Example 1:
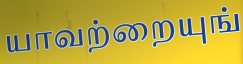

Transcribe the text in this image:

யாவற்றையுங்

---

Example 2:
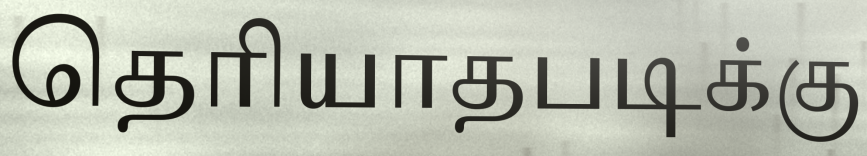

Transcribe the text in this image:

தெரியாதபடிக்கு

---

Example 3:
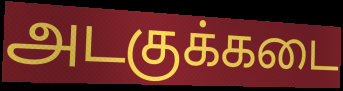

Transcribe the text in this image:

அடகுக்கடை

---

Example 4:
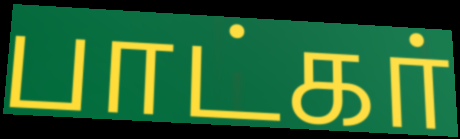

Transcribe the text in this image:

பாட்கர்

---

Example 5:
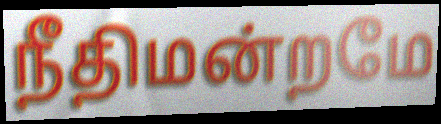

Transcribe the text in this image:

நீதிமன்றமே